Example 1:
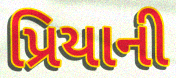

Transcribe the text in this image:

પ્રિયાની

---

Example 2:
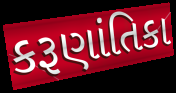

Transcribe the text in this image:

કરૂણાંતિકા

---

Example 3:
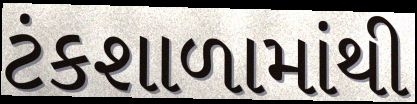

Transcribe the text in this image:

ટંકશાળામાંથી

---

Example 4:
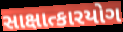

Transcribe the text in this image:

સાક્ષાત્કારયોગ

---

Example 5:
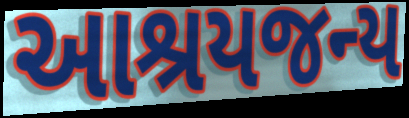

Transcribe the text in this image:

આશ્રયજન્ય